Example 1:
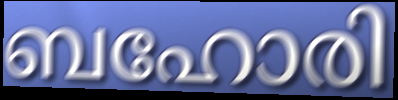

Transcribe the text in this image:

ബഹോരി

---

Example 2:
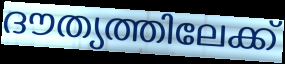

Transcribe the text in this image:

ദൗത്യത്തിലേക്ക്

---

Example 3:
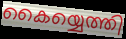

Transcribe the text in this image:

കൈയ്യെത്തി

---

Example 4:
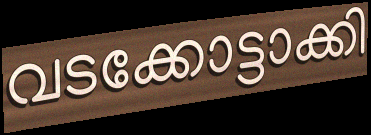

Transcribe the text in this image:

വടക്കോട്ടാക്കി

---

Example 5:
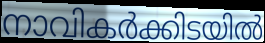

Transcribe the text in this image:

നാവികർക്കിടയിൽ